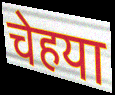
चेहया